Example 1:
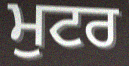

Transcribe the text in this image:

ਮੁਟਰ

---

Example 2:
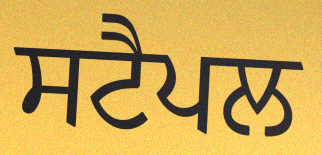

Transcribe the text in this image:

ਸਟੈਪਲ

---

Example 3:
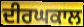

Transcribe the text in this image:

ਦੀਰਘਕਾਲ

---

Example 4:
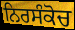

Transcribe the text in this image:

ਨਿਰਸੰਕੋਚ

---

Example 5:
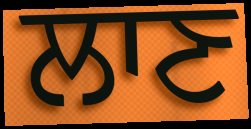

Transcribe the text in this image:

ਲਾਣ